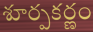
శూర్పకర్ణం